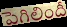
పెగిలిందీ